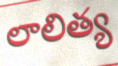
లాలిత్య